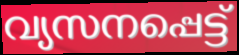
വ്യസനപ്പെട്ട്